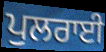
ਪੁਲਰਾਈ